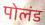
पोलंड